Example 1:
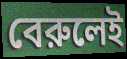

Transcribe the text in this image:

বেরুলেই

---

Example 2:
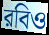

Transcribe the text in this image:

রবিও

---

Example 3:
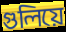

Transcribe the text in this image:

গুলিয়ে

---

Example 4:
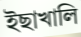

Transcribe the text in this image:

ইছাখালি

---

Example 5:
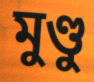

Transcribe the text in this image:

মুণ্ডু